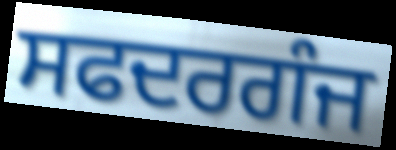
ਸਫਦਰਗੰਜ